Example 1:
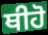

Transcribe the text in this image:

ਥੀਹੋ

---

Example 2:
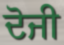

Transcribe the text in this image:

ਦੋਜੀ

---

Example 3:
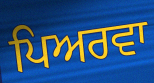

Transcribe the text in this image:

ਪਿਅਰਵਾ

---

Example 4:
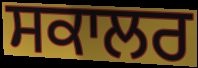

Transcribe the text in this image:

ਸਕਾਲਰ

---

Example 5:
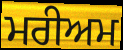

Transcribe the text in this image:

ਮਰੀਅਮ